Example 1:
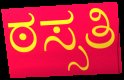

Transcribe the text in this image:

ಠಸ್ಸತಿ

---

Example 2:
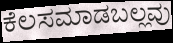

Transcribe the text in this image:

ಕೆಲಸಮಾಡಬಲ್ಲವು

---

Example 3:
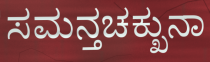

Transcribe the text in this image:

ಸಮನ್ತಚಕ್ಖುನಾ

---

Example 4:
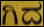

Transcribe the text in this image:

ಗಿದ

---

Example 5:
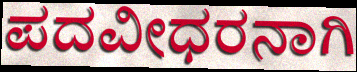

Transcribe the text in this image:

ಪದವೀಧರನಾಗಿ